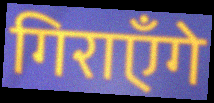
गिराएँगे